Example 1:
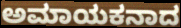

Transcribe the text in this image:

ಅಮಾಯಕನಾದ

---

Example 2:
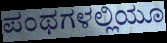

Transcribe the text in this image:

ಪಂಥಗಳಲ್ಲಿಯೂ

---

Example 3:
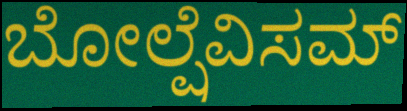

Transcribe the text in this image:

ಬೋಲ್ಷೆವಿಸಮ್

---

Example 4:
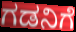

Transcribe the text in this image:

ಗಡನಿಗೆ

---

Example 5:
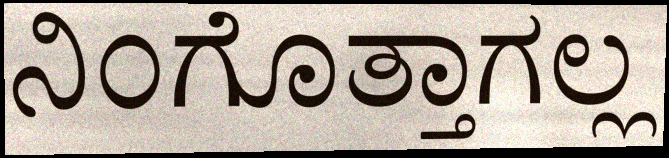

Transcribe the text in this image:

ನಿಂಗೊತ್ತಾಗಲ್ಲ